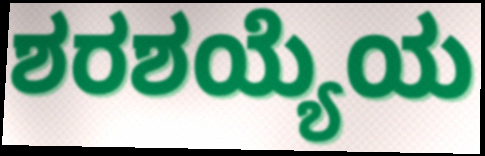
ಶರಶಯ್ಯೆಯ